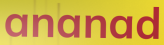
ananad